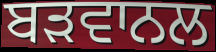
ਬੜਵਾਨਲ